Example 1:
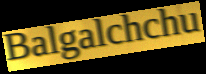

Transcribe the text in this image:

Balgalchchu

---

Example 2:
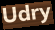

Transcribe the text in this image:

Udry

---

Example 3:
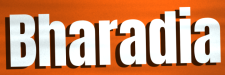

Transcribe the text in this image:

Bharadia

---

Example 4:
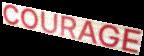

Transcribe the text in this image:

COURAGE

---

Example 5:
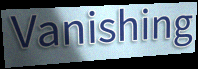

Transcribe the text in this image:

Vanishing